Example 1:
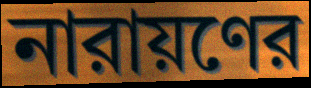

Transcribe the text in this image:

নারায়ণের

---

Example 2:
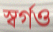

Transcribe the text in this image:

স্বর্গও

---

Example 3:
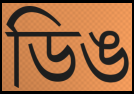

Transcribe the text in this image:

ডিঙ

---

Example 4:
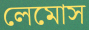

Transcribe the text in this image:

লেমোস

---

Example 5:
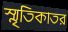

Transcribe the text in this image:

স্মৃতিকাতর